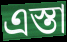
এস্তা